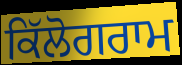
ਕਿੱਲੋਗਰਾਮ